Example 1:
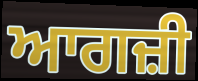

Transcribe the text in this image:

ਆਗਜ਼ੀ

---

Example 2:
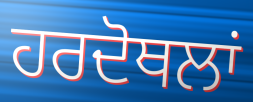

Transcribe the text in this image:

ਹਰਦੋਥਲਾਂ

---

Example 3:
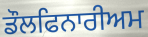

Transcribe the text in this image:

ਡੌਲਫਿਨਾਰੀਅਮ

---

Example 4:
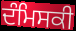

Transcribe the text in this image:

ਦੰਮਿਸਕੀ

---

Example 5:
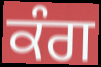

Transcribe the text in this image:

ਕੰਗ